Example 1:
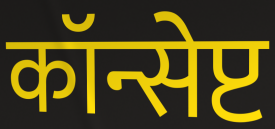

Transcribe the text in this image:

कॉन्सेप्ट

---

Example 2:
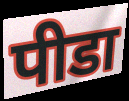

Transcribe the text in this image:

पीडा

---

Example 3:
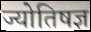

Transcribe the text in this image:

ज्योतिषज्ञ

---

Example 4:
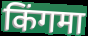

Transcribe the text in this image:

किंगमा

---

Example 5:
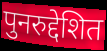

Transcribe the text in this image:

पुनरुद्देशित